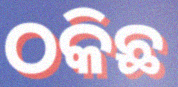
ଠକିଛ